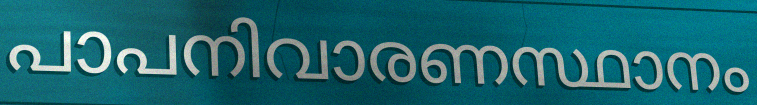
പാപനിവാരണസ്ഥാനം